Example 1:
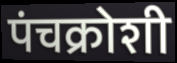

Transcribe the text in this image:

पंचक्रोशी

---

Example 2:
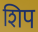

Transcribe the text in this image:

शिप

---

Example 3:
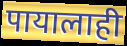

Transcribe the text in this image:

पायालाही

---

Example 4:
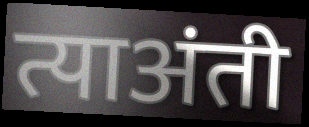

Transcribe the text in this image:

त्याअंती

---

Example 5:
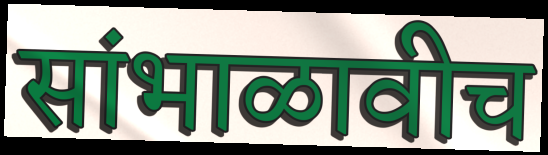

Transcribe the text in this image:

सांभाळावीच